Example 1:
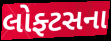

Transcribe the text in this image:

લોફ્ટસના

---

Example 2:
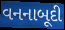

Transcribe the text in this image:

વનનાબૂદી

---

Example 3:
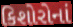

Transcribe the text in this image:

કિશોરોનાં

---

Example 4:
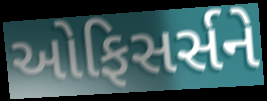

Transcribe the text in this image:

ઓફિસર્સને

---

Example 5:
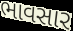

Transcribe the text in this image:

ભાવસાર